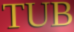
TUB